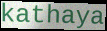
kathaya